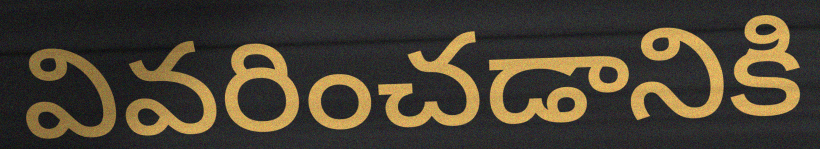
వివరించడానికి